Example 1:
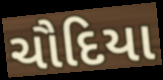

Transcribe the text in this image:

ચૌદિયા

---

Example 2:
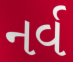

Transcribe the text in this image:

નર્વ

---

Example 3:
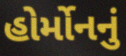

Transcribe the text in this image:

હોર્મોનનું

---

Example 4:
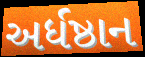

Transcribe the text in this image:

અર્ધષ્ઠાન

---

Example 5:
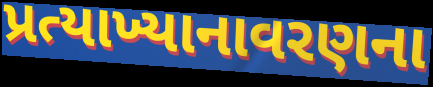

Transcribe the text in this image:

પ્રત્યાખ્યાનાવરણના